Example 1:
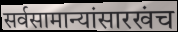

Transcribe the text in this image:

सर्वसामान्यांसारखंच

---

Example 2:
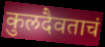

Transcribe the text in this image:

कुलदैवताचं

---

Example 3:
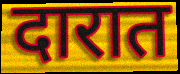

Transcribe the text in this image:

दारात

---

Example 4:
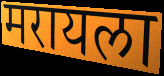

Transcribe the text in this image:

मरायला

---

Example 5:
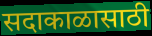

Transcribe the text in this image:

सदाकाळासाठी